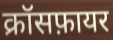
क्रॉसफ़ायर